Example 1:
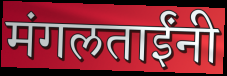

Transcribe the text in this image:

मंगलताईंनी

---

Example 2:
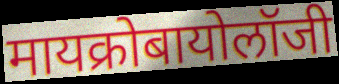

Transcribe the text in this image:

मायक्रोबायोलॉजी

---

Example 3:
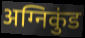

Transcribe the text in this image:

अग्निकुंड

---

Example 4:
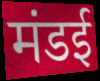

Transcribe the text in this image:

मंडई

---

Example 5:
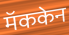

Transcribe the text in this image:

मॅककेन